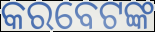
କରବେଟଙ୍କ